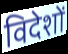
विदेशों